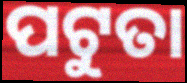
ପଟୁତା